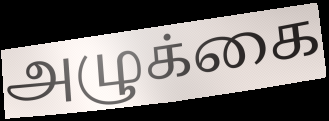
அழுக்கை